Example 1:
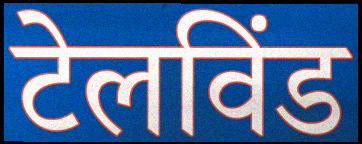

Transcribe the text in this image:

टेलविंड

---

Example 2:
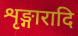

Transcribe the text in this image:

शृङ्गारादि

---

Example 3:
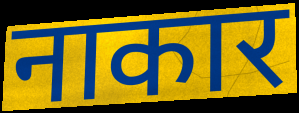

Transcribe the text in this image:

नाकार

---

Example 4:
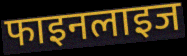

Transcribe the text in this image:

फाइनलाइज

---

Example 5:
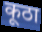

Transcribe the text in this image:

कूठा